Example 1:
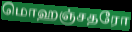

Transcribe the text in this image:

மொஹஞ்சதரோ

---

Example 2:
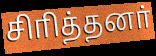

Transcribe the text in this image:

சிரித்தனர்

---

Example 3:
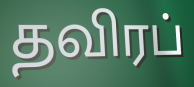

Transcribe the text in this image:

தவிரப்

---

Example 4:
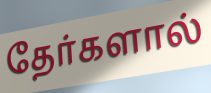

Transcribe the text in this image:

தேர்களால்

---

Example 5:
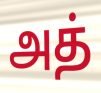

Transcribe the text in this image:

அத்